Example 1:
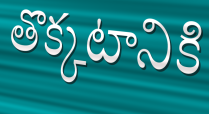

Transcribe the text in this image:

తొక్కటానికి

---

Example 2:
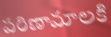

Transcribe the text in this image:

పరిణామాలకి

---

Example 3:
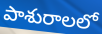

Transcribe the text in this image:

పాశురాలలో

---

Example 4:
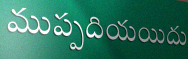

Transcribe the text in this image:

ముప్పదియయిదు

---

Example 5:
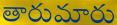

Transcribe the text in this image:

తారుమారు